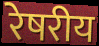
रेषरीय